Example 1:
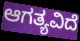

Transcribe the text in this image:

ಆಗತ್ಯವಿದೆ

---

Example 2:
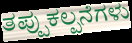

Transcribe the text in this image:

ತಪ್ಪುಕಲ್ಪನೆಗಳು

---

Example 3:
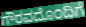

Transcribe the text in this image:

ಗೌರವದೊಂದಿಗೆ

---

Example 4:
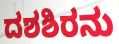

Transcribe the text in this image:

ದಶಶಿರನು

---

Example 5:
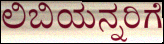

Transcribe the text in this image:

ಲಿಬಿಯನ್ನರಿಗೆ